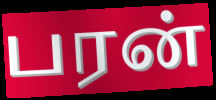
பரன்